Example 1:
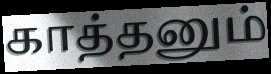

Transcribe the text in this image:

காத்தனும்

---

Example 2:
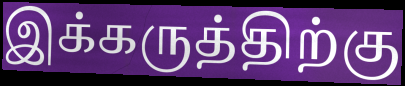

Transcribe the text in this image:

இக்கருத்திற்கு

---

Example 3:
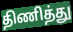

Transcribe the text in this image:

திணித்து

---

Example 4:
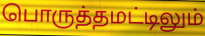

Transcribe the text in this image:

பொருத்தமட்டிலும்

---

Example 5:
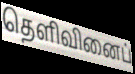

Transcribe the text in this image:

தெளிவினைப்